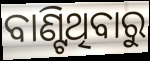
ବାଣ୍ଟିଥିବାରୁ